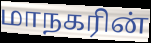
மாநகரின்